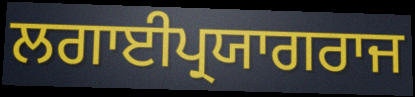
ਲਗਾਈਪ੍ਰਯਾਗਰਾਜ